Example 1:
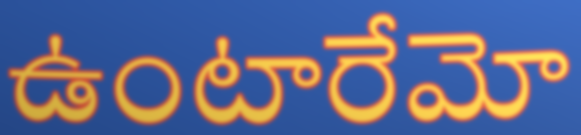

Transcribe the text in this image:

ఉంటారేమో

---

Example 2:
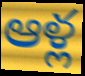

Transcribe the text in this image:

ఆళ్ల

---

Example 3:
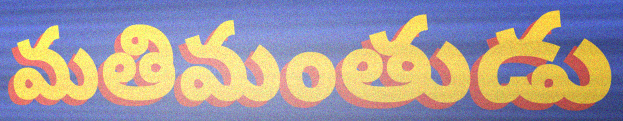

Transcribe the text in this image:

మతిమంతుడు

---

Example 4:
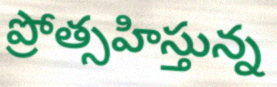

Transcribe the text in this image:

ప్రోత్సహిస్తున్న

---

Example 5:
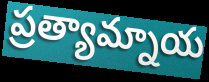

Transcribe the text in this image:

ప్రత్యామ్నాయ